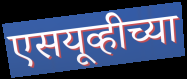
एसयूव्हीच्या